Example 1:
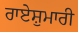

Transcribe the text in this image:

ਰਾਏਸ਼ੁਮਾਰੀ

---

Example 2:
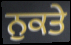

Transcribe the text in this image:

ਨੁਕਤੇ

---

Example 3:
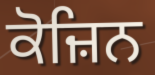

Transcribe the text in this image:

ਕੋਜ਼ਿਨ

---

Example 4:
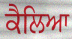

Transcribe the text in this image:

ਕੈਲਿਆ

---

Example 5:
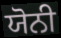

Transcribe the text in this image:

ਯੋਨੀ